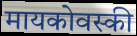
मायकोवस्की